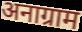
अनाग्राम